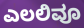
ಎಲಲಿವೂ